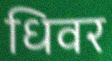
धिवर